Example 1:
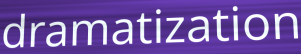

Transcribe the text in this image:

dramatization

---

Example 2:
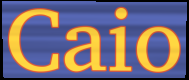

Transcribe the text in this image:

Caio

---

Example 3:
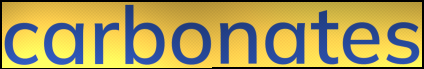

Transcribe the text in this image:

carbonates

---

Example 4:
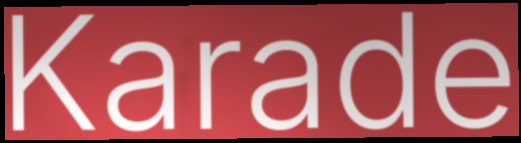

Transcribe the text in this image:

Karade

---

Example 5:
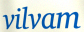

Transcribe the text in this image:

vilvam